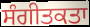
ਸੰਗੀਤਕਤਾ